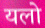
यलो